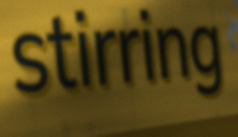
stirring